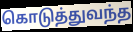
கொடுத்துவந்த